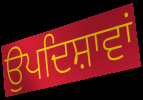
ਉਪਦਿਸ਼ਾਵਾਂ